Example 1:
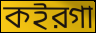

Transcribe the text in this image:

কইরগা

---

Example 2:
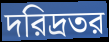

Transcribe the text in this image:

দরিদ্রতর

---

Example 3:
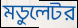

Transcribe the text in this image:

মডুলেটর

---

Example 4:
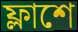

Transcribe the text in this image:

ফ্লাশে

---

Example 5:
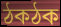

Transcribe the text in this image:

ঠকঠক